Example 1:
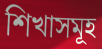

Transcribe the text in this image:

শিখাসমূহ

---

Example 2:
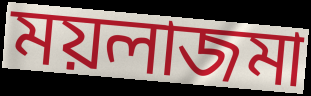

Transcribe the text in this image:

ময়লাজমা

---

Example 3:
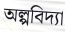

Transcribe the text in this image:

অল্পবিদ্যা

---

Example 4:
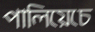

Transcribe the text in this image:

পালিয়েচে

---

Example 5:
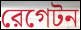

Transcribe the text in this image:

রেগেটন